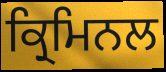
ਕ੍ਰਿਮਿਨਲ